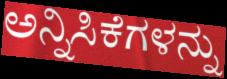
ಅನ್ನಿಸಿಕೆಗಳನ್ನು